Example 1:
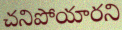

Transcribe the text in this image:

చనిపోయారని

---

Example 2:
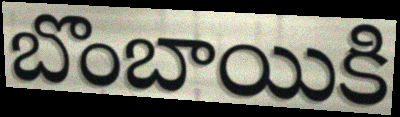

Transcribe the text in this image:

బొంబాయికి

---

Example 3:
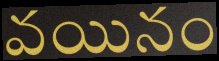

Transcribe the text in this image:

వయినం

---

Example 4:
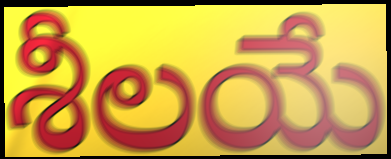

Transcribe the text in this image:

శీలయే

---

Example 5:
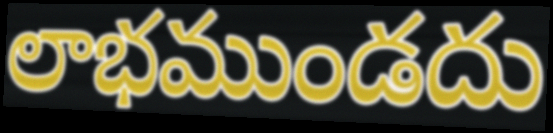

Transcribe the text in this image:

లాభముండదు